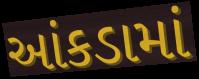
આંકડામાં